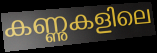
കണ്ണുകളിലെ